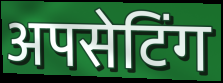
अपसेटिंग